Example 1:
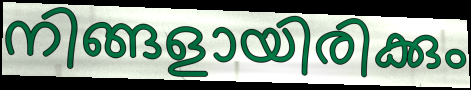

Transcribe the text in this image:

നിങ്ങളായിരിക്കും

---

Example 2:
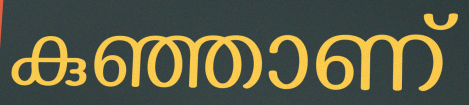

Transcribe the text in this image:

കുഞ്ഞാണ്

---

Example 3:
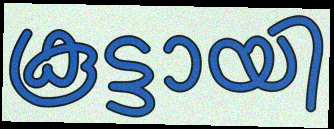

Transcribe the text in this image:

കൂട്ടായി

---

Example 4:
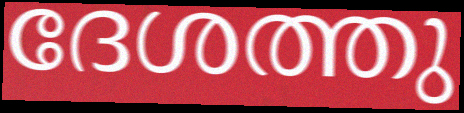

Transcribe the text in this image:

ദേശത്തു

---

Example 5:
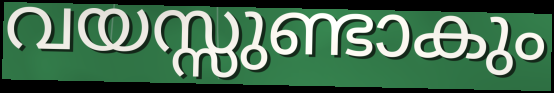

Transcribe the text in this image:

വയസ്സുണ്ടാകും